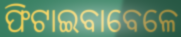
ଫିଟାଇବାବେଳେ